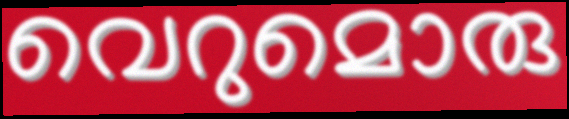
വെറുമൊരു